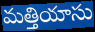
మత్తియాసు